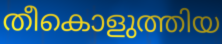
തീകൊളുത്തിയ